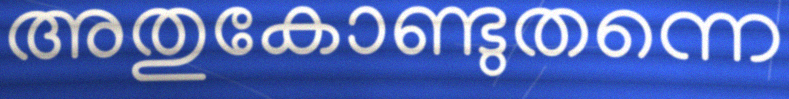
അതുകോണ്ടുതന്നെ